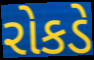
રોકડે